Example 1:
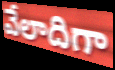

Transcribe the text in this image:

వేలాదిగా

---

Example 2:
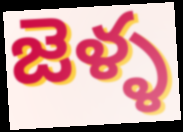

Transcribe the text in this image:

జెళ్ళ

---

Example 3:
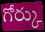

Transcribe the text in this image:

గోర్కు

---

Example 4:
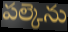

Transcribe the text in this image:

పల్కెను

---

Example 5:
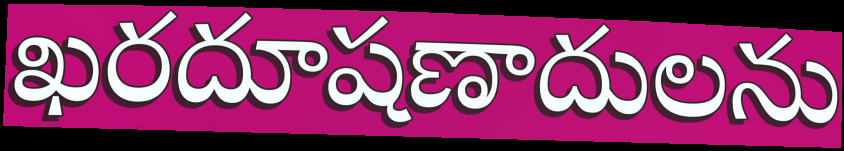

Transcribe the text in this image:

ఖరదూషణాదులను